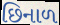
છિનાળ